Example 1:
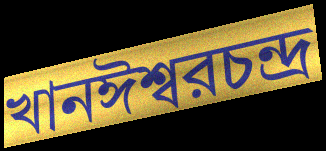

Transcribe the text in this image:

খানঈশ্বরচন্দ্র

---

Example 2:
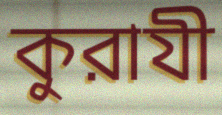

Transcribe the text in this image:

কুরাযী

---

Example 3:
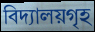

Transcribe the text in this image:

বিদ্যালয়গৃহ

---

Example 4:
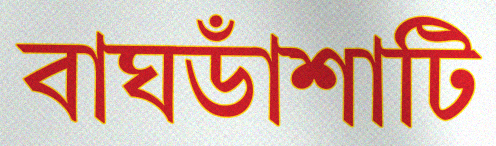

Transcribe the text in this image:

বাঘডাঁশাটি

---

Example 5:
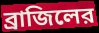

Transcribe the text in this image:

ব্রাজিলের